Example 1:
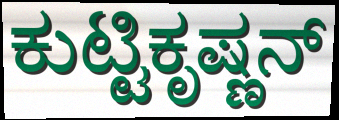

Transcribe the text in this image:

ಕುಟ್ಟಿಕೃಷ್ಣನ್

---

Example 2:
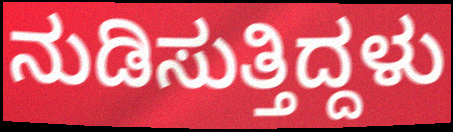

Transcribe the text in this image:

ನುಡಿಸುತ್ತಿದ್ದಳು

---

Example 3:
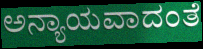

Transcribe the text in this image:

ಅನ್ಯಾಯವಾದಂತೆ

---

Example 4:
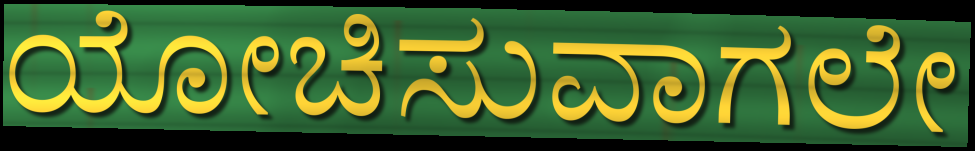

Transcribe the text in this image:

ಯೋಚಿಸುವಾಗಲೇ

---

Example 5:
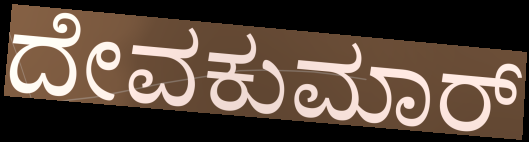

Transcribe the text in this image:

ದೇವಕುಮಾರ್